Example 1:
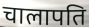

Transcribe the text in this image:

चालापति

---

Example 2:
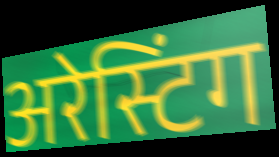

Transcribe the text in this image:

अरेस्टिंग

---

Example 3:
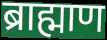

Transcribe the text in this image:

ब्राह्माण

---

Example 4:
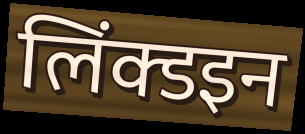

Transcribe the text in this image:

लिंक्‍डइन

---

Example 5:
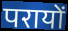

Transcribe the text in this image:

परायों